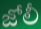
జోలీ